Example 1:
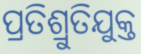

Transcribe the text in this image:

ପ୍ରତିଶ୍ରୁତିଯୁକ୍ତ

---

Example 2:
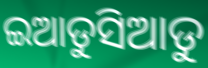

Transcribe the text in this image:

ଇଆଡୁସିଆଡୁ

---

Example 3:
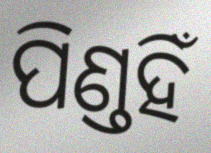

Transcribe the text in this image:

ପିଣ୍ଡହିଁ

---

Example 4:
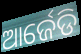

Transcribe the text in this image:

ଆର୍ଜେଡି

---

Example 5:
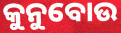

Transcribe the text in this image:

କୁନୁବୋଉ